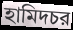
হামিদচর